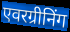
एवरग्रीनिंग